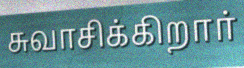
சுவாசிக்கிறார்